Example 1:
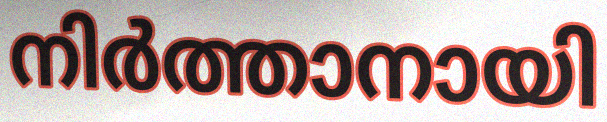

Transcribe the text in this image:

നിർത്താനായി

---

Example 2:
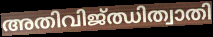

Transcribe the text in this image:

അതിവിജ്ഝിത്വാതി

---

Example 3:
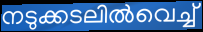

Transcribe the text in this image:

നടുക്കടലിൽവെച്ച്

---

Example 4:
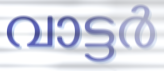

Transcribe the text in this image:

വാട്ടർ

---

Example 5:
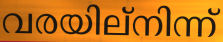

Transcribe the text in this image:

വരയില്നിന്ന്